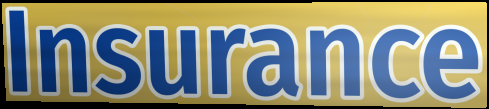
Insurance